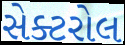
સેક્ટરોલ